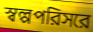
স্বল্পপরিসরে